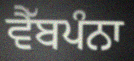
ਵੈੱਬਪੰਨਾ